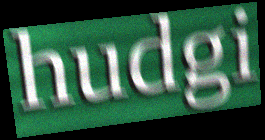
hudgi